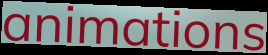
animations